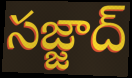
సజ్జాద్